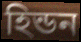
হিন্ডন